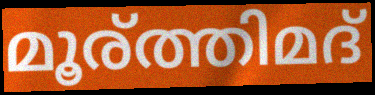
മൂര്ത്തിമദ്